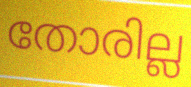
തോരില്ല